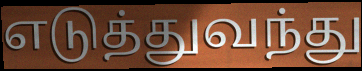
எடுத்துவந்து